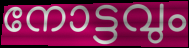
നോട്ടവും